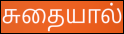
சுதையால்